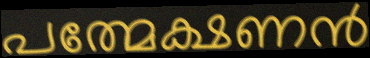
പത്മേക്ഷണൻ